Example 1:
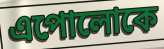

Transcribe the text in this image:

এপোলোকে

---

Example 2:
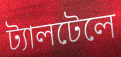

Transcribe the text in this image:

ট্যালটেলে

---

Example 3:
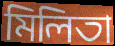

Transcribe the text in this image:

মিলিতা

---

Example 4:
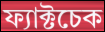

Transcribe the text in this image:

ফ্যাক্টচেক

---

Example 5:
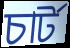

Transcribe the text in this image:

চার্ট